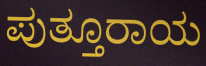
ಪುತ್ತೂರಾಯ